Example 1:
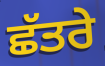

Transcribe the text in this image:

ਛੱਤਰੇ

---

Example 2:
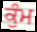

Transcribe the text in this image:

ਕੁੰਮ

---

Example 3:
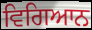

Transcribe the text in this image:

ਵਿਗਿਆਨ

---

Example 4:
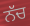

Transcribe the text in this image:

ਨੱਚ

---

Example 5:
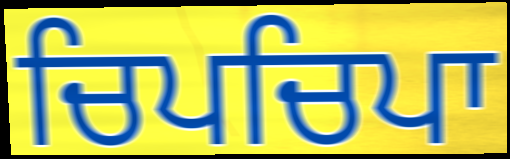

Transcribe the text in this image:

ਚਿਪਚਿਪਾ